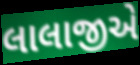
લાલાજીએ